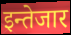
इन्तेजार